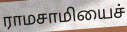
ராமசாமியைச்